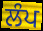
ਲੰਪ